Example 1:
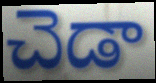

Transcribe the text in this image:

చెడా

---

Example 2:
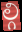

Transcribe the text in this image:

ల్గి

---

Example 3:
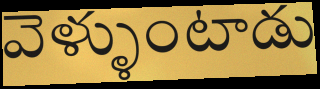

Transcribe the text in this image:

వెళ్ళుంటాడు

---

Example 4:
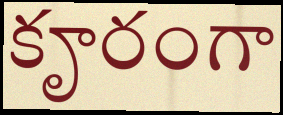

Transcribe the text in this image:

కౄరంగా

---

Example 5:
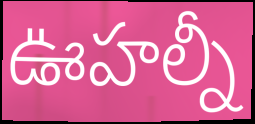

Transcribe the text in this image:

ఊహల్నీ